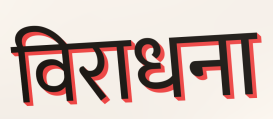
विराधना